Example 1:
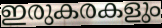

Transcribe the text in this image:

ഇരുകരകളും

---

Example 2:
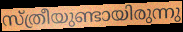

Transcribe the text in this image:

സ്ത്രീയുണ്ടായിരുന്നു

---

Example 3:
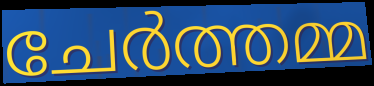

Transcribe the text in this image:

ചേർത്തമ്മ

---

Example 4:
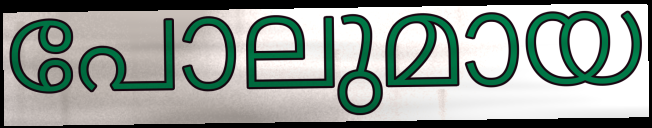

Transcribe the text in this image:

പോലുമായ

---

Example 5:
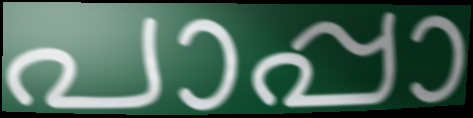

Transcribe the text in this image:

പാപ്പാ